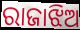
ରାଜାଝିଅ